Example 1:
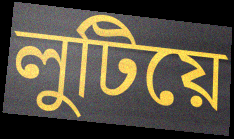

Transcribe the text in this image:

লুটিয়ে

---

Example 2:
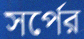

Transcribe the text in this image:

সর্পের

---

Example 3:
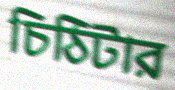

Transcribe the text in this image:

চিঠিটার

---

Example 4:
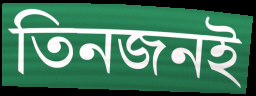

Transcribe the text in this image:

তিনজনই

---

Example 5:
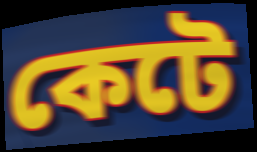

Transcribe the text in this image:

কেটে